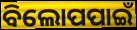
ବିଲୋପପାଇଁ